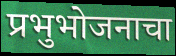
प्रभुभोजनाचा